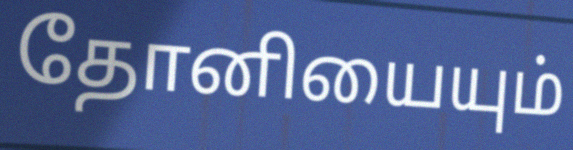
தோனியையும்